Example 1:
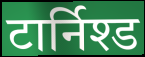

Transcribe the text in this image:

टार्निश्ड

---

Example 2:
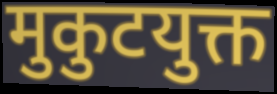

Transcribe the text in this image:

मुकुटयुक्त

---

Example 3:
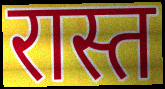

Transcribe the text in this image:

रास्त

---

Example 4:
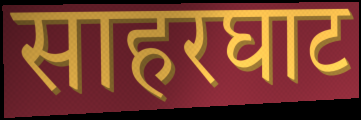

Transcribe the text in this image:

साहरघाट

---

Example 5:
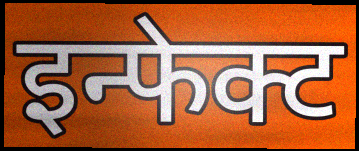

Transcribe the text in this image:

इन्फेक्ट